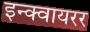
इन्क्वायरर